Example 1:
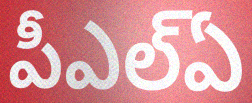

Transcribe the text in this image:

పీఎల్ఏ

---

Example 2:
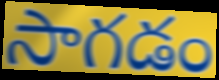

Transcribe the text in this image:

సాగడం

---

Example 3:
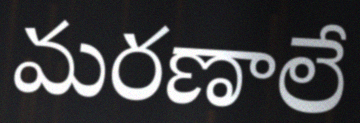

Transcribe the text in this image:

మరణాలే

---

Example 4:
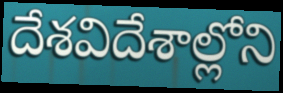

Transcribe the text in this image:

దేశవిదేశాల్లోని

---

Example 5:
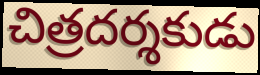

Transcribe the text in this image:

చిత్రదర్శకుడు